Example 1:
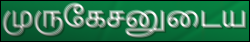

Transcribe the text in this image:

முருகேசனுடைய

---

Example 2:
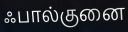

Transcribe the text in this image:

ஃபால்குனை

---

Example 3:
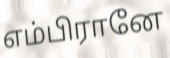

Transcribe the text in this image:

எம்பிரானே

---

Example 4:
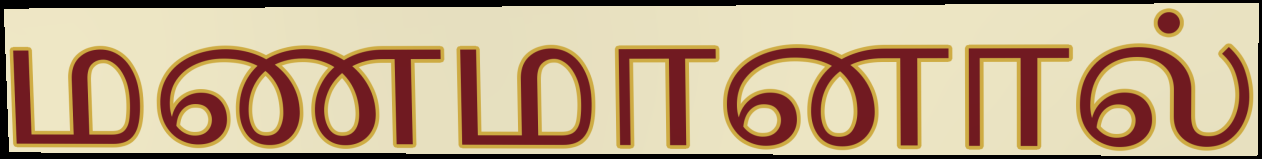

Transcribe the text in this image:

மணமானால்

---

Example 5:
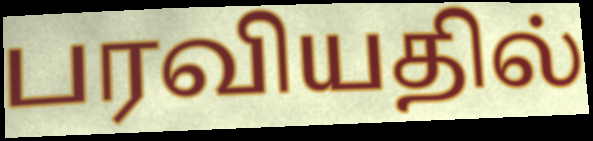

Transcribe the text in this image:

பரவியதில்